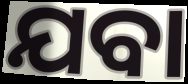
ଯବା